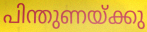
പിന്തുണയ്ക്കു